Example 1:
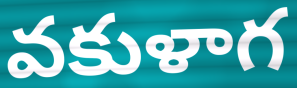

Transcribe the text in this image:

వకుళాగ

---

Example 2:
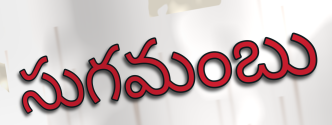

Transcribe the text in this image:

సుగమంబు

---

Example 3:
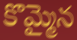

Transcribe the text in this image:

కొమ్మైన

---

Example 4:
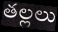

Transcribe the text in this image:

తల్లలు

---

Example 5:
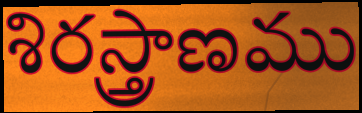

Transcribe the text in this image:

శిరస్త్రాణము